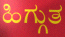
ಹಿಗ್ಗುತ